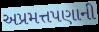
અપ્રમત્તપણાની